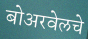
बोअरवेलचे